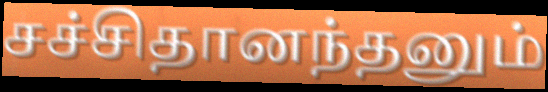
சச்சிதானந்தனும்